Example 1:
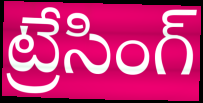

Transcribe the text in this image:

ట్రేసింగ్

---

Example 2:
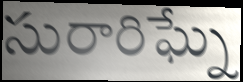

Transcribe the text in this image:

సురారిఘ్నే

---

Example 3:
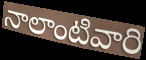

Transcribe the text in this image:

నాలాంటివారి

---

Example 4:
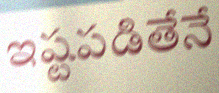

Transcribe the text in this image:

ఇష్టపడితేనే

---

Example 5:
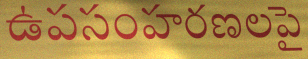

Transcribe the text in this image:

ఉపసంహరణలపై